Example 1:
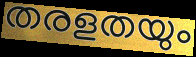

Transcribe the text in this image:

തരളതയും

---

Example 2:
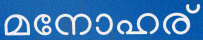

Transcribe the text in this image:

മനോഹര്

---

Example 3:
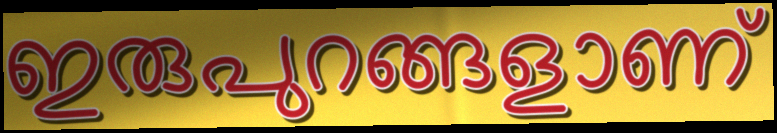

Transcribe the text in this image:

ഇരുപുറങ്ങളാണ്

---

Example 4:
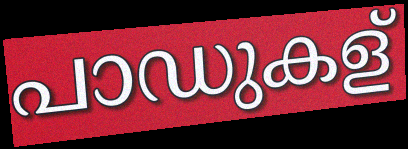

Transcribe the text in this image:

പാഡുകള്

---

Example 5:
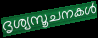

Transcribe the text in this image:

ദൃശ്യസൂചനകൾ